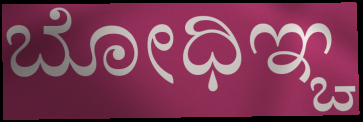
ಬೋಧಿಞ್ಚ